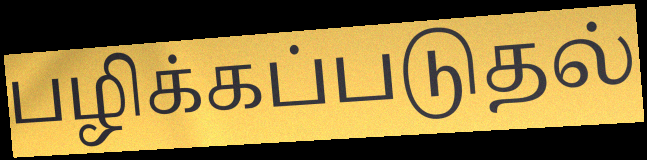
பழிக்கப்படுதல்